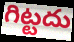
గిట్టదు